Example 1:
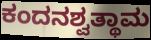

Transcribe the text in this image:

ಕಂದನಶ್ವತ್ಥಾಮ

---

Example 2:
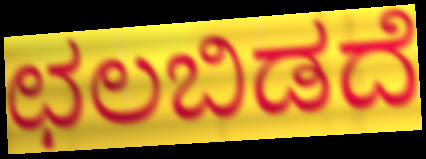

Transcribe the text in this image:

ಛಲಬಿಡದೆ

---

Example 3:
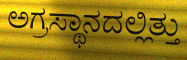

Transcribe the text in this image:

ಅಗ್ರಸ್ಥಾನದಲ್ಲಿತ್ತು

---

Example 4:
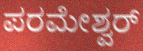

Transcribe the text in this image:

ಪರಮೇಶ್ವರ್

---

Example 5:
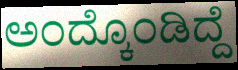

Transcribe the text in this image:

ಅಂದ್ಕೊಂಡಿದ್ದೆ